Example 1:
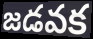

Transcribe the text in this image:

జడవక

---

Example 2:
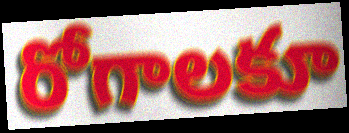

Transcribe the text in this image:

రోగాలకూ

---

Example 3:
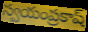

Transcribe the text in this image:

స్వయంప్రకాష్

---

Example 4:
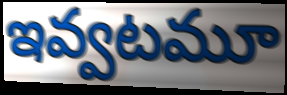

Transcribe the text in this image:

ఇవ్వటమూ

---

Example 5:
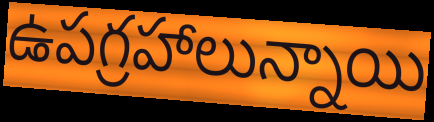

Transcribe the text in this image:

ఉపగ్రహాలున్నాయి